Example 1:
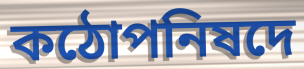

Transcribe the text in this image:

কঠোপনিষদে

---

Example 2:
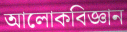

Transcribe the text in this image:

আলোকবিজ্ঞান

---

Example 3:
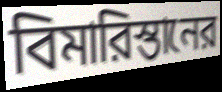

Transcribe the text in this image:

বিমারিস্তানের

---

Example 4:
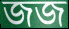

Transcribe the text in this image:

জজ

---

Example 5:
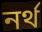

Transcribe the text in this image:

নর্থ